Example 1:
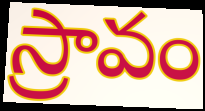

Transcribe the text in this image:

స్రావం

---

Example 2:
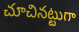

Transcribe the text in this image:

చూచినట్టుగా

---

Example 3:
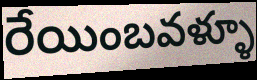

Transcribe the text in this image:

రేయింబవళ్ళూ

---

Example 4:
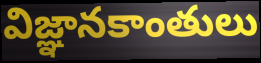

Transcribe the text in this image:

విజ్ఞానకాంతులు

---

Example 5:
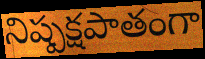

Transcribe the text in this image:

నిష్పక్షపాతంగా